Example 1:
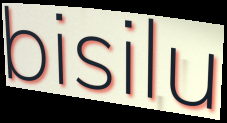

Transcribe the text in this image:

bisilu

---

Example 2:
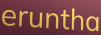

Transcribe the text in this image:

eruntha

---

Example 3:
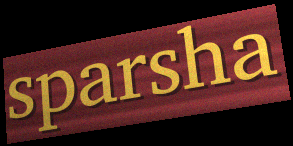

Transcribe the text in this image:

sparsha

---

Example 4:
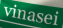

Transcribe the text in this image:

vinasei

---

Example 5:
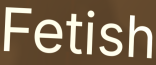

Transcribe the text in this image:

Fetish